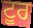
ਟੂਰ